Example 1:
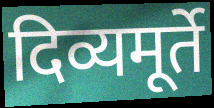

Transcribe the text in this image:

दिव्यमूर्ते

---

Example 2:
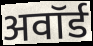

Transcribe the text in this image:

अवॉर्ड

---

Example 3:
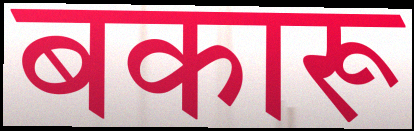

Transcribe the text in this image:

बकारू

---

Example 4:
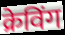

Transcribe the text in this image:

क्रेविंग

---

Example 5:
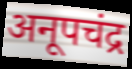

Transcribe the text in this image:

अनूपचंद्र